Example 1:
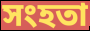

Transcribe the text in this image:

সংহতা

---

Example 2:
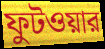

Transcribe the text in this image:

ফুটওয়ার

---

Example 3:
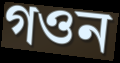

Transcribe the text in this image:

গওন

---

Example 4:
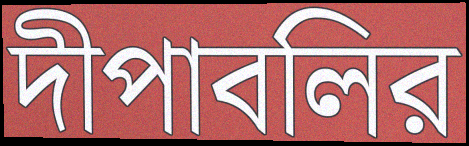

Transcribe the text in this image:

দীপাবলির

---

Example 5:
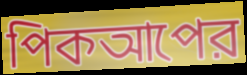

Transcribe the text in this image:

পিকআপের